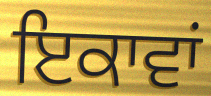
ਇਕਾਵਾਂ